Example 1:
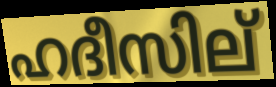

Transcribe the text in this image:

ഹദീസില്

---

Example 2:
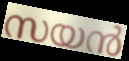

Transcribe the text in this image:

സയൻ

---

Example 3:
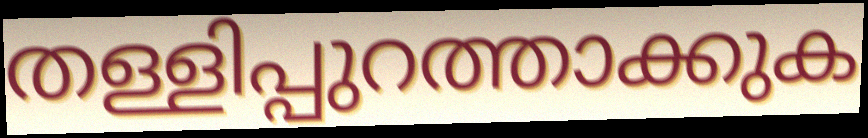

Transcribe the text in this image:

തള്ളിപ്പുറത്താക്കുക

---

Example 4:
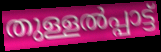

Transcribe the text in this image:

തുള്ളൽപ്പാട്ട്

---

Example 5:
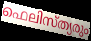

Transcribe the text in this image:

ഫെലിസ്ത്യരും